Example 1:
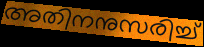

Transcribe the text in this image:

അതിനനുസരിച്ച്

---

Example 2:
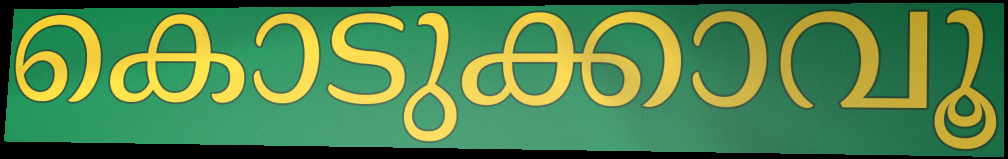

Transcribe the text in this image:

കൊടുക്കാവൂ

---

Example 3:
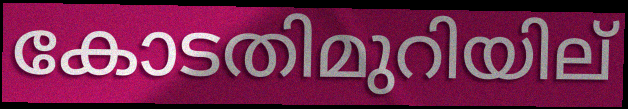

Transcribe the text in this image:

കോടതിമുറിയില്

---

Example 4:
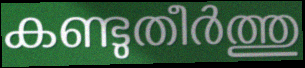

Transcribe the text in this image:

കണ്ടുതീർത്തു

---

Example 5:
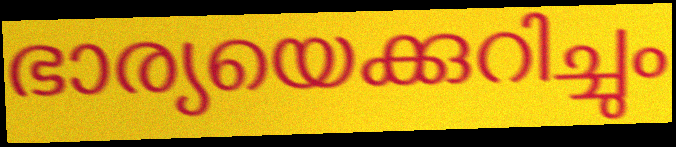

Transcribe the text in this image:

ഭാര്യയെക്കുറിച്ചും